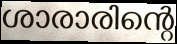
ശാരാരിന്റെ